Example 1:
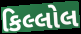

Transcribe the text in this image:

કિલ્લોલ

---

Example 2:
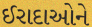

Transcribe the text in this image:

ઈરાદાઓને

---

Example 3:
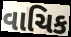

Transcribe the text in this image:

વાચિક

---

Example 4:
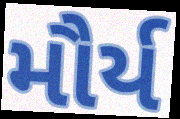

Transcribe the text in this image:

મૌર્ય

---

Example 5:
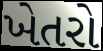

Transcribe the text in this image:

ખેતરો